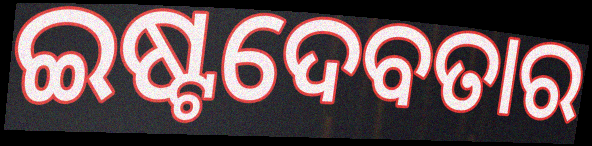
ଇଷ୍ଟଦେବତାର